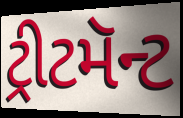
ટ્રીટમૅન્ટ